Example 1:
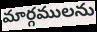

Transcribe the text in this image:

మార్గములను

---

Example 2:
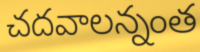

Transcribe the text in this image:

చదవాలన్నంత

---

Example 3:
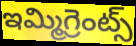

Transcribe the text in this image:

ఇమ్మిగ్రెంట్స్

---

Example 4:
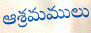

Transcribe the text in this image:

ఆశ్రమములు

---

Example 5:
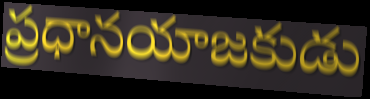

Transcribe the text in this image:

ప్రధానయాజకుడు